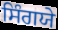
ਸਿੰਗਯੇ